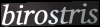
birostris